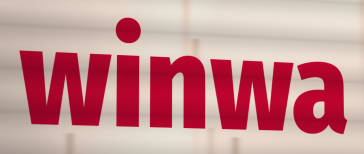
winwa